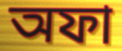
অফা